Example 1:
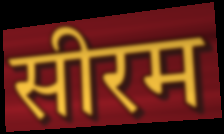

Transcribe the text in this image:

सीरम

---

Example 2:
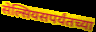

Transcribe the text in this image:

सेल्सियसपर्यंतच्या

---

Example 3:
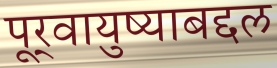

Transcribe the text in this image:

पूर्वायुष्याबद्दल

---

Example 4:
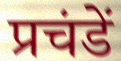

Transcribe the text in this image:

प्रचंडें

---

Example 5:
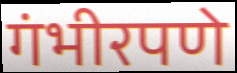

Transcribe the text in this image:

गंभीरपणे